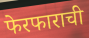
फेरफाराची